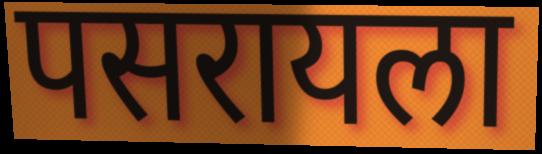
पसरायला